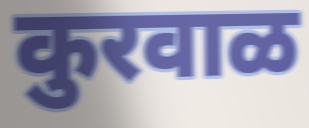
कुरवाळ